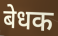
बेधक